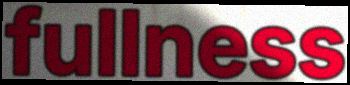
fullness